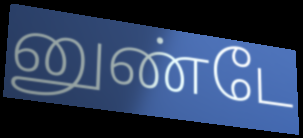
னுண்டே